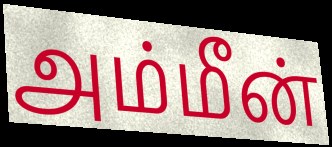
அம்மீன்